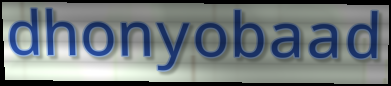
dhonyobaad